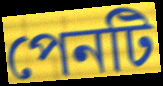
পেনটি